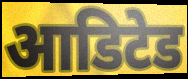
आडिटेड